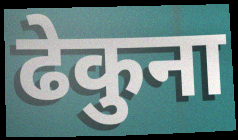
ढेकुना